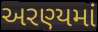
અરણ્યમાં